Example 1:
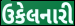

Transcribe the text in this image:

ઉકેલનારી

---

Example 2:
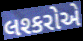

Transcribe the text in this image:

લશ્કરોએ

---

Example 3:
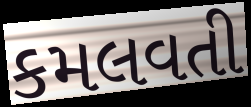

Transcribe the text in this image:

કમલવતી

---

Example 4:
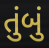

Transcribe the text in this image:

તુંબું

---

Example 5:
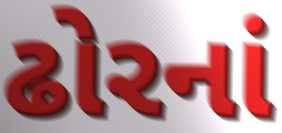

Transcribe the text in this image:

ઢોરનાં